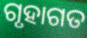
ଗୃହାଗତ